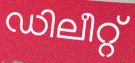
ഡിലീറ്റ്